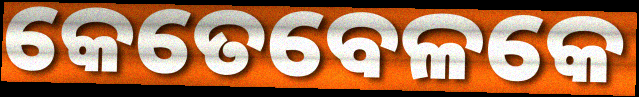
କେତେବେଳକେ